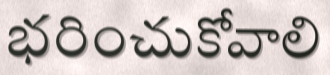
భరించుకోవాలి